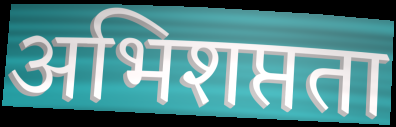
अभिशप्तता